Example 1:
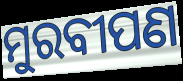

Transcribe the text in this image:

ମୁରବୀପଣ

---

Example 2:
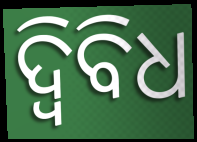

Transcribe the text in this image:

ଦ୍ୱିବିଧ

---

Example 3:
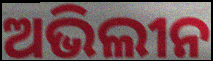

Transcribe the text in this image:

ଅଭିଲୀନ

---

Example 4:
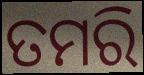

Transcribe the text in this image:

ତମରି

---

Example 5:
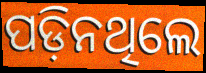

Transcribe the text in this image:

ପଡ଼ିନଥିଲେ